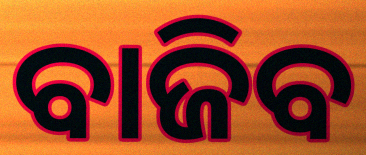
ବାଜିବ